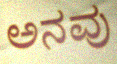
ಅನವು